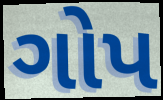
ગોપ